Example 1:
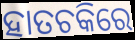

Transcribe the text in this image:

ହାତଚକିରେ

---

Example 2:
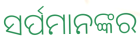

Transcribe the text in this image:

ସର୍ପମାନଙ୍କର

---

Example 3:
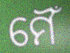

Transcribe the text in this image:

ମୈଁ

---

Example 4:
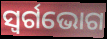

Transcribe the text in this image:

ସ୍ୱର୍ଗଭୋଗ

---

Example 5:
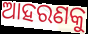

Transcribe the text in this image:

ଆହରଣକୁ